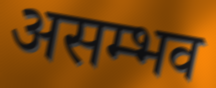
असम्भव